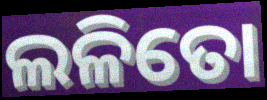
ଲଳିତୋ